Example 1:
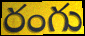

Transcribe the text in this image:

రంగు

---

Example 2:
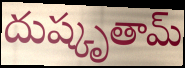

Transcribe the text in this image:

దుష్కృతామ్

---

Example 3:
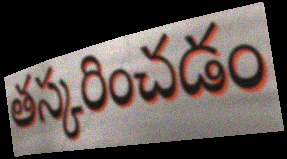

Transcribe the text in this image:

తస్కరించడం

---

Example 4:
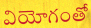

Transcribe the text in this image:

వియోగంతో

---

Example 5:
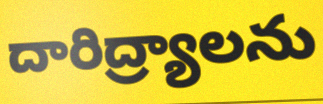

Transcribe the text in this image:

దారిద్ర్యాలను